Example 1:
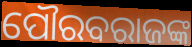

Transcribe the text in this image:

ପୌରବରାଜଙ୍କ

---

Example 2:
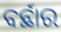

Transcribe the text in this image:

ବର୍ଛାର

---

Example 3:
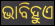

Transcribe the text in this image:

ଭାବିହୁଏ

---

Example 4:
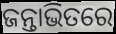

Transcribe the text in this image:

ଜନ୍ତାଭିତରେ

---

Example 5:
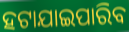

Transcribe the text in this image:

ହଟାଯାଇପାରିବ